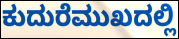
ಕುದುರೆಮುಖದಲ್ಲಿ